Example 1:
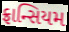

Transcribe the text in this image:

ફ્રાન્સિયમ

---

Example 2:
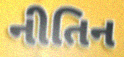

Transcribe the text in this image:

નીતિન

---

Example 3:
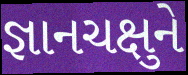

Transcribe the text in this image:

જ્ઞાનચક્ષુને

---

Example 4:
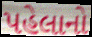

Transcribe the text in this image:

પહેલાનો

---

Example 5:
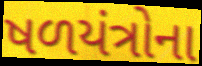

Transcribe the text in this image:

ષળયંત્રોના